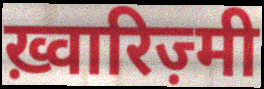
ख़्वारिज़्मी